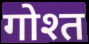
गोश्त